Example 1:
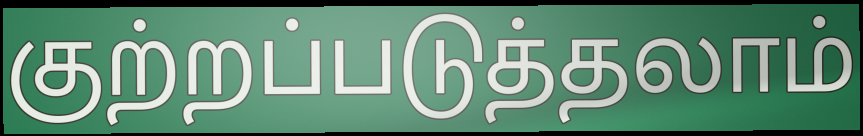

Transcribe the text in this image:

குற்றப்படுத்தலாம்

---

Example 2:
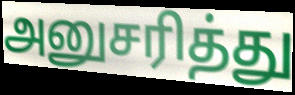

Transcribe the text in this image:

அனுசரித்து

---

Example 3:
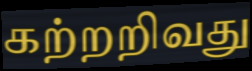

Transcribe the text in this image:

கற்றறிவது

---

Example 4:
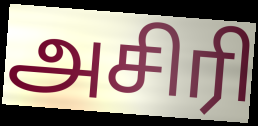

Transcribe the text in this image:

அசிரி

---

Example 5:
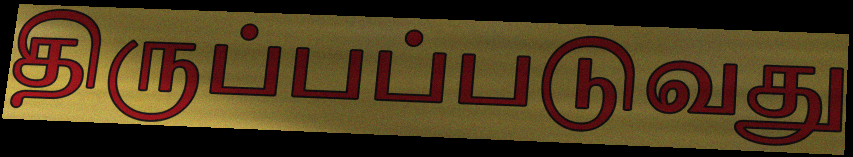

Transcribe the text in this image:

திருப்பப்படுவது